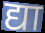
द्या